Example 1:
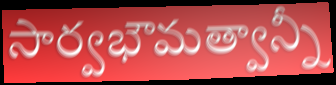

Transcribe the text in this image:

సార్వభౌమత్వాన్నీ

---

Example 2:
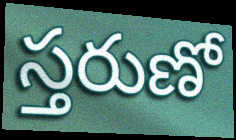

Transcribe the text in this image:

స్తరుణో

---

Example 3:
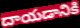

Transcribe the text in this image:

దాయడానికి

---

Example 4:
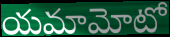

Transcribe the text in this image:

యమామోటో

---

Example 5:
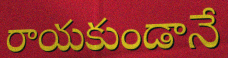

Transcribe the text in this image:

రాయకుండానే